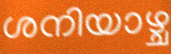
ശനിയാഴ്ച